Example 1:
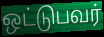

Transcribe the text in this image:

ஒட்டுபவர்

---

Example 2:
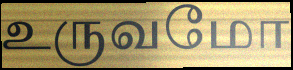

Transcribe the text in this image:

உருவமோ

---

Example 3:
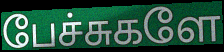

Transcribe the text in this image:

பேச்சுகளே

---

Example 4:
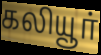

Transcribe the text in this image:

கலியூர்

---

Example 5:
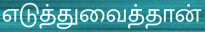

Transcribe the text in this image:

எடுத்துவைத்தான்